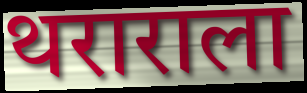
थराराला